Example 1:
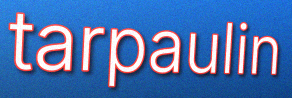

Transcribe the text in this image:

tarpaulin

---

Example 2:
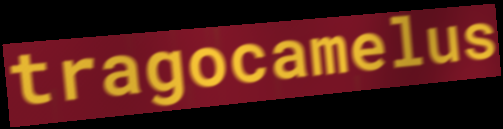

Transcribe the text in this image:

tragocamelus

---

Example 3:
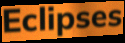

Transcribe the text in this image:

Eclipses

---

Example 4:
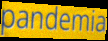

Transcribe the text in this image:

pandemia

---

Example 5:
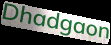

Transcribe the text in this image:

Dhadgaon